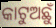
କାଟୁଅଛୁଁ